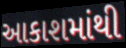
આકાશમાંથી